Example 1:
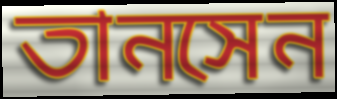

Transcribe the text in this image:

তানসেন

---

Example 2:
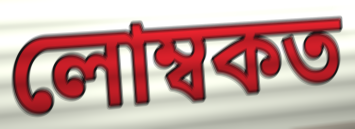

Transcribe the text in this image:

লোম্বকত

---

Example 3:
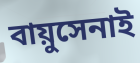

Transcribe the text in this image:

বায়ুসেনাই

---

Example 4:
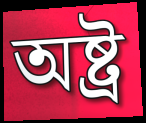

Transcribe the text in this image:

অষ্ট্ৰ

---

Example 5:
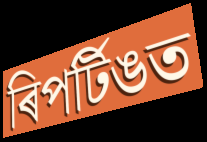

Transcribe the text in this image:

ৰিপৰ্টিঙত